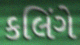
કલિંગે